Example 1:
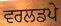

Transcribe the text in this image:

ਵਰਲਡਪੇ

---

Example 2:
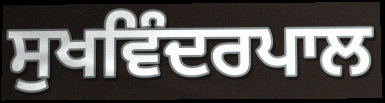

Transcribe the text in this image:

ਸੁਖਵਿੰਦਰਪਾਲ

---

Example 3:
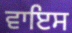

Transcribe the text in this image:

ਵਾਇਸ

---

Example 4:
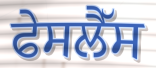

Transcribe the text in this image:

ਫੇਸਲੈੱਸ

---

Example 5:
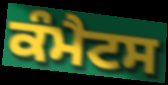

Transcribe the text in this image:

ਕੰਮੈਟਸ